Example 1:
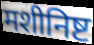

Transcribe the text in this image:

मशीनिष्ट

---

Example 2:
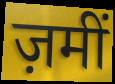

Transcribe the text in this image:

ज़मीं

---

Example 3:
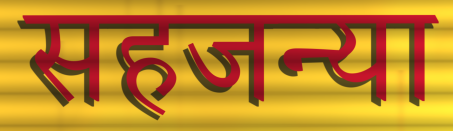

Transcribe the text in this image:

सहजन्या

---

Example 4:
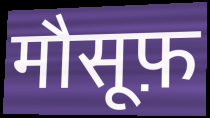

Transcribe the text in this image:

मौसूफ़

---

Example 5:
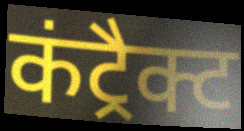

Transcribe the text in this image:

कंट्रैक्ट